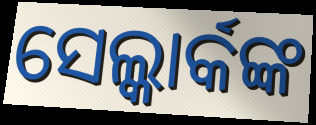
ସେଲ୍କାର୍କଙ୍କ